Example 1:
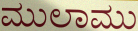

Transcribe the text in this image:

ಮುಲಾಮು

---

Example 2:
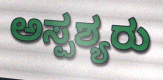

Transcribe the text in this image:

ಅಸ್ಪಶ್ಯರು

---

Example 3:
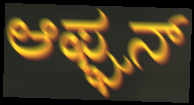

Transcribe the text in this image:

ಆಫ್ಘನ್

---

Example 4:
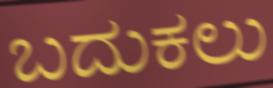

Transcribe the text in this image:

ಬದುಕಲು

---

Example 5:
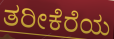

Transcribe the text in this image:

ತರೀಕೆರೆಯ